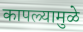
कापल्यामुळे